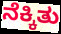
ನೆಕ್ಕಿತು